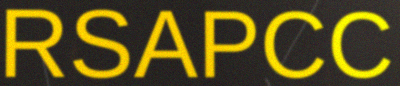
RSAPCC